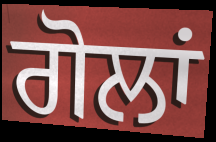
ਗੋਲਾਂ